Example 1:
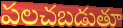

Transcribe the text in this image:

పలచబడుతూ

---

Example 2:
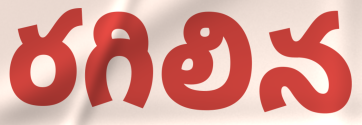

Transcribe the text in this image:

రగిలిన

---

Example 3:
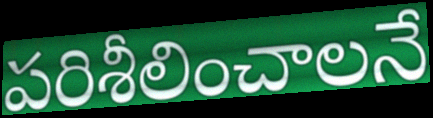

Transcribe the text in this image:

పరిశీలించాలనే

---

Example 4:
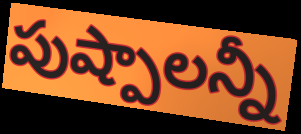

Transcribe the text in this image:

పుష్పాలన్నీ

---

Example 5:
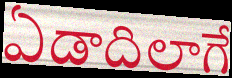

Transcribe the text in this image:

ఏడాదిలాగే